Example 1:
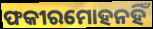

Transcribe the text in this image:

ଫକୀରମୋହନହିଁ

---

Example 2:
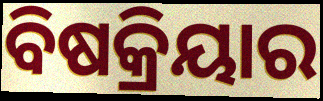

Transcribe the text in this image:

ବିଷକ୍ରିୟାର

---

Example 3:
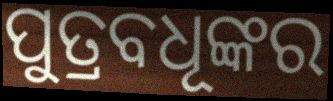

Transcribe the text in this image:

ପୁତ୍ରବଧୂଙ୍କର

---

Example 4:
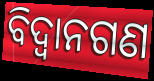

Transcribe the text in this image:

ବିଦ୍ଵାନଗଣ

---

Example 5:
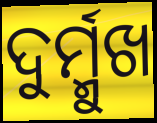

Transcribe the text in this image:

ଦୁର୍ମ୍ମୁଖ